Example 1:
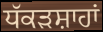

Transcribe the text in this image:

ਧੱਕੜਸ਼ਾਹਾਂ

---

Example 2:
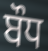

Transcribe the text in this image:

ਬੌਧ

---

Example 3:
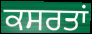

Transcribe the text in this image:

ਕਸਰਤਾਂ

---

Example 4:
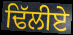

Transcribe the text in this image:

ਢਿੱਲੀਏ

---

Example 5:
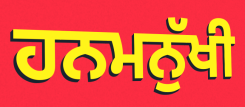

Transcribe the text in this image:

ਹਨਮਨੁੱਖੀ